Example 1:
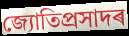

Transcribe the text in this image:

জ্যোতিপ্ৰসাদৰ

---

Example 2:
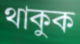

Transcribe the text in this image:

থাকুক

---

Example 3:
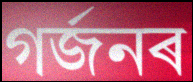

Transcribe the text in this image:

গৰ্জনৰ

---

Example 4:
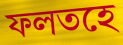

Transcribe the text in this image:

ফলতহে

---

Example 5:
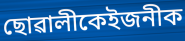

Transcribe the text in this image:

ছোৱালীকেইজনীক